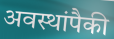
अवस्थांपैकी